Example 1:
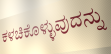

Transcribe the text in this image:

ಕಳಚಿಕೊಳ್ಳುವುದನ್ನು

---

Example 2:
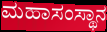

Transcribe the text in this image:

ಮಹಾಸಂಸ್ಥಾನ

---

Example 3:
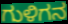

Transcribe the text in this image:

ಗುಳಿಗನ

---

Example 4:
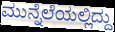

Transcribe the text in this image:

ಮುನ್ನೆಲೆಯಲ್ಲಿದ್ದು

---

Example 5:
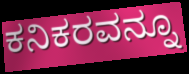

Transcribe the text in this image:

ಕನಿಕರವನ್ನೂ